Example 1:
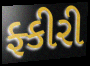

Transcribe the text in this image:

ફ્કીરી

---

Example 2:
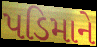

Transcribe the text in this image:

પડિમાને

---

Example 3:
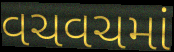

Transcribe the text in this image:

વચવચમાં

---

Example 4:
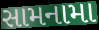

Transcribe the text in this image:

સામનામા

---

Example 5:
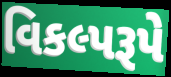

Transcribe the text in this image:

વિકલ્પરૂપે